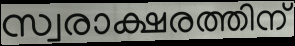
സ്വരാക്ഷരത്തിന്